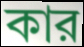
কার